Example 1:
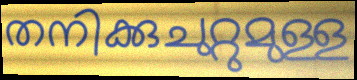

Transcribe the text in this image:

തനിക്കുചുറ്റുമുള്ള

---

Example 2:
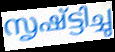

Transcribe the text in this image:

സൃഷ്ട്ടിച്ചു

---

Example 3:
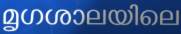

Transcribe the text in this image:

മൃഗശാലയിലെ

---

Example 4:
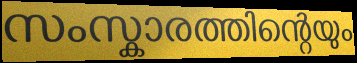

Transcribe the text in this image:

സംസ്കാരത്തിന്റെയും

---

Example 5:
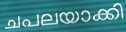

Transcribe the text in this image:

ചപലയാക്കി